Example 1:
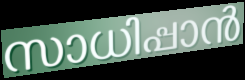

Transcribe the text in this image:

സാധിപ്പാൻ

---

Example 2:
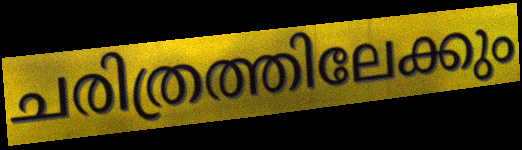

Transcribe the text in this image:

ചരിത്രത്തിലേക്കും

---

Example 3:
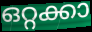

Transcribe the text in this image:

ഒറ്റക്കാ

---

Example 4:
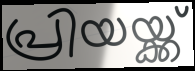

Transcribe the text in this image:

പ്രിയയ്ക്ക്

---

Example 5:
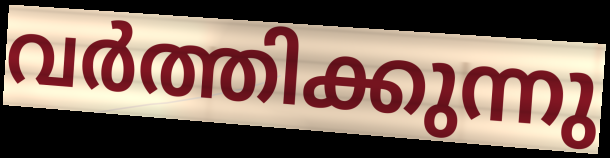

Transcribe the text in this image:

വർത്തിക്കുന്നു